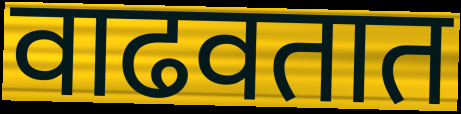
वाढवतात